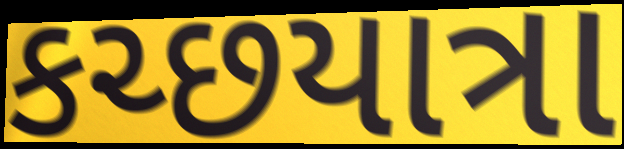
કચ્છયાત્રા